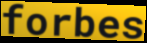
forbes